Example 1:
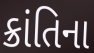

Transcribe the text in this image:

ક્રાંતિના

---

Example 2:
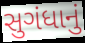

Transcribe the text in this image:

સુગંધાનું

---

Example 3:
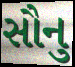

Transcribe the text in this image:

સૌનુ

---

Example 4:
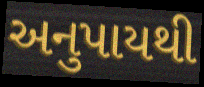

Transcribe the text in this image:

અનુપાયથી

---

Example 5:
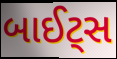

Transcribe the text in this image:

બાઈટ્સ